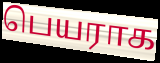
பெயராக